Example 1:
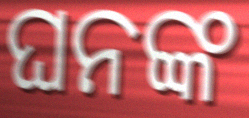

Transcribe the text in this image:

ଘନଙ୍କ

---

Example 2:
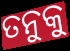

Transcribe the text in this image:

ତନୁକୁ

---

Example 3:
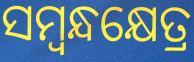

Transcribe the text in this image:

ସମ୍ବନ୍ଧକ୍ଷେତ୍ର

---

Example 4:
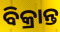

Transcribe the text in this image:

ବିକ୍ରାନ୍ତ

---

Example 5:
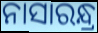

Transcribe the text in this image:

ନାସାରନ୍ଧ୍ର